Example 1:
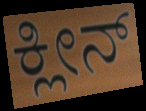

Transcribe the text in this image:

ಕ್ಲೀನ್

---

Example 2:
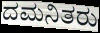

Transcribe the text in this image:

ದಮನಿತರು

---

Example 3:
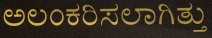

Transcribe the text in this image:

ಅಲಂಕರಿಸಲಾಗಿತ್ತು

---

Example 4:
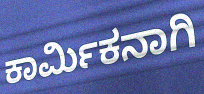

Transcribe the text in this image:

ಕಾರ್ಮಿಕನಾಗಿ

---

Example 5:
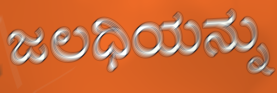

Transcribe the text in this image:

ಜಲಧಿಯನ್ನು